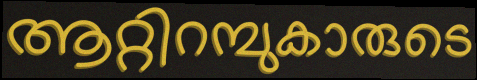
ആറ്റിറമ്പുകാരുടെ